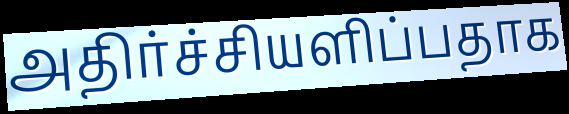
அதிர்ச்சியளிப்பதாக